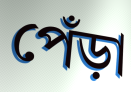
পেঁড়া